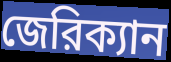
জেরিক্যান